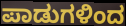
ಪಾಡುಗಳಿಂದ